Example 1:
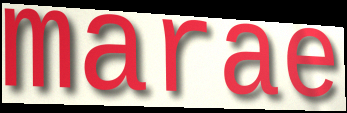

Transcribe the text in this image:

marae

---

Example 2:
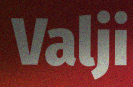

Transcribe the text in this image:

Valji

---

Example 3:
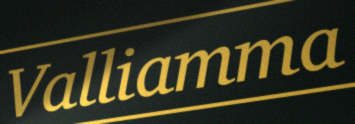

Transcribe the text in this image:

Valliamma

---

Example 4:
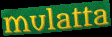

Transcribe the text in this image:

mulatta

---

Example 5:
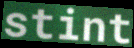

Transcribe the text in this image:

stint